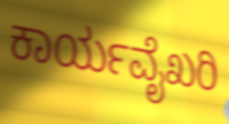
ಕಾರ್ಯವೈಖರಿ